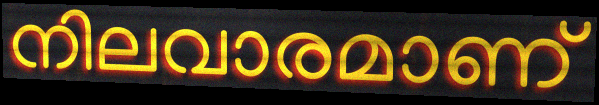
നിലവാരമാണ്